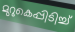
മുറുകെപ്പിടിച്ച്